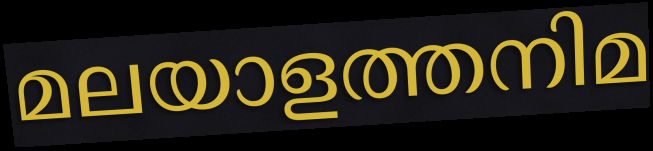
മലയാളത്തനിമ